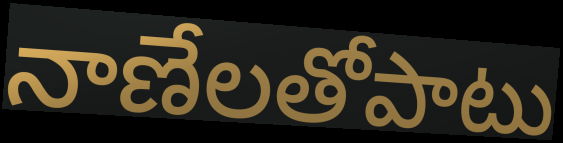
నాణేలతోపాటు